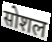
सोशल